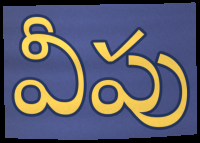
వీపు